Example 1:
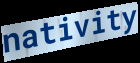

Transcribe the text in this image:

nativity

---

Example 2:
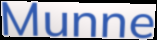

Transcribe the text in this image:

Munne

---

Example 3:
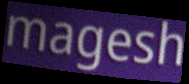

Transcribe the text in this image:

magesh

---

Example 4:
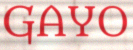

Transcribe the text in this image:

GAYO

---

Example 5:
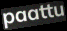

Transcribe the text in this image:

paattu